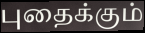
புதைக்கும்